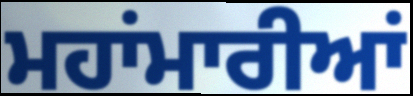
ਮਹਾਂਮਾਰੀਆਂ